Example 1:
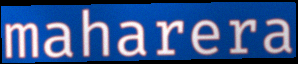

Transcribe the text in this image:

maharera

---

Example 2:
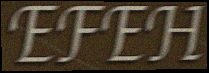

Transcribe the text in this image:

EFEH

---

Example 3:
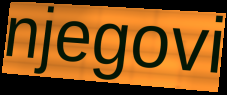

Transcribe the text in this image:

njegovi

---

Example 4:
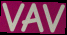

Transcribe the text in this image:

VAV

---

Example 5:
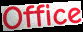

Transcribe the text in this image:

Office